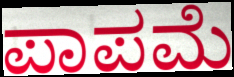
ಪಾಪಮೆ